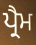
ਪ੍ਰੈਮ